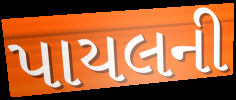
પાયલની